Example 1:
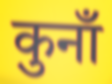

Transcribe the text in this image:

कुनाँ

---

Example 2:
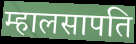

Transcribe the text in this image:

म्हालसापति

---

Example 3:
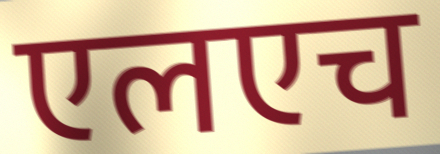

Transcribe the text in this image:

एलएच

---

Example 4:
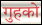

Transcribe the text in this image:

गुहको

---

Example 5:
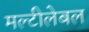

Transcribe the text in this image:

मल्टीलेबल